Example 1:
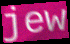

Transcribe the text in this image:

jew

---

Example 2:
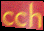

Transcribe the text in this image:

cch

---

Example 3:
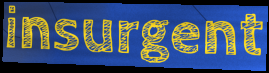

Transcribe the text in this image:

insurgent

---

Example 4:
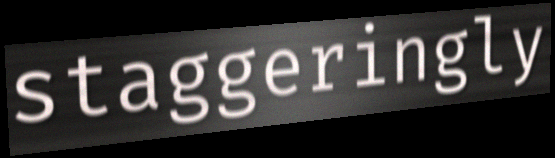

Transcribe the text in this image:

staggeringly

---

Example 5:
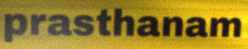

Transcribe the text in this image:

prasthanam